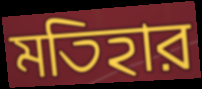
মতিহার